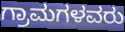
ಗ್ರಾಮಗಳವರು